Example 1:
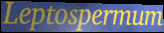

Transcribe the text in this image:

Leptospermum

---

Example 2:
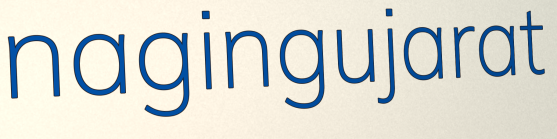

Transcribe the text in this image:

nagingujarat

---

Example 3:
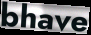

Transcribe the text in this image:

bhave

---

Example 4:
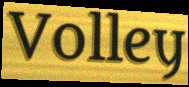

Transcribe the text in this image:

Volley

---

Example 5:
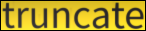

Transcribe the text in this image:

truncate